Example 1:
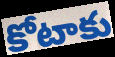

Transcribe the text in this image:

కోటాకు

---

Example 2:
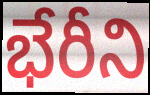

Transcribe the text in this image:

భేరీని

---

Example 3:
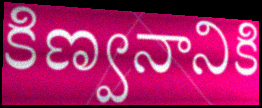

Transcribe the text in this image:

కిణ్వనానికి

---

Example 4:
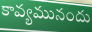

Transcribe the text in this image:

కావ్యమునందు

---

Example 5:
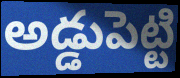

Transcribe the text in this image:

అడ్డుపెట్టి